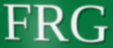
FRG